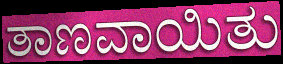
ತಾಣವಾಯಿತು